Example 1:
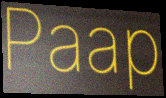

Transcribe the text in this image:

Paap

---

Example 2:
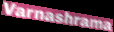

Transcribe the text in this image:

Varnashrama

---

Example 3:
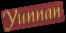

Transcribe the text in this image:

Yunnan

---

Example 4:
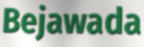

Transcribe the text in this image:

Bejawada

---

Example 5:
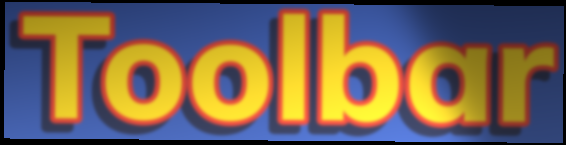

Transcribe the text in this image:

Toolbar